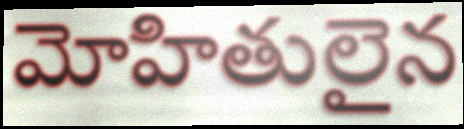
మోహితులైన